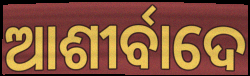
ଆଶୀର୍ବାଦେ